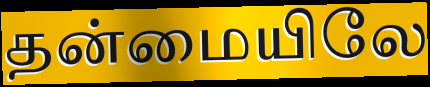
தன்மையிலே